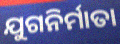
ଯୁଗନିର୍ମାତା